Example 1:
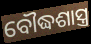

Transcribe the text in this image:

ବୌଦ୍ଧଶାସ୍ତ୍ର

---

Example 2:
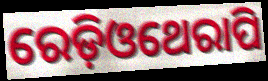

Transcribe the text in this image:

ରେଡ଼ିଓଥେରାପି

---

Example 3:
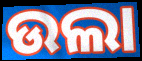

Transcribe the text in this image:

ଉଲା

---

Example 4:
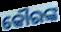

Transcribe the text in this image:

କୌରଙ୍କ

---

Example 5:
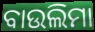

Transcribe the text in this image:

ବାଉଲିମା